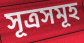
সূত্রসমূহ